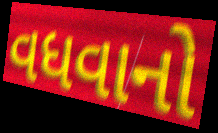
વધવાનો